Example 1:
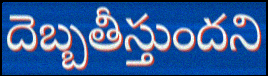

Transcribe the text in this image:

దెబ్బతీస్తుందని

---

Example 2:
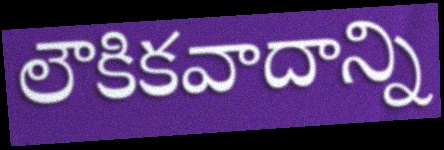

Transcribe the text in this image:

లౌకికవాదాన్ని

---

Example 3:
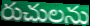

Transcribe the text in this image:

రుచులను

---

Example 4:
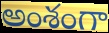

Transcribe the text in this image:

అంశంగా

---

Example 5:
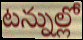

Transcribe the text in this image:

టన్నుల్లో